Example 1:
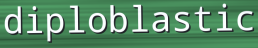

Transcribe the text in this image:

diploblastic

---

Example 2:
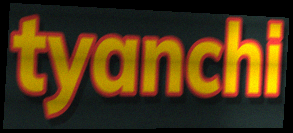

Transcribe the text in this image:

tyanchi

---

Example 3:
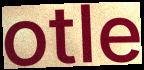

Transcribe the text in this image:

otle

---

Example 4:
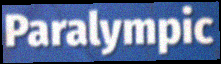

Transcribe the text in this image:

Paralympic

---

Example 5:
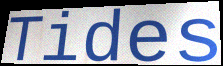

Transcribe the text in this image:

Tides